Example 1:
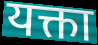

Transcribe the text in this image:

यक्ता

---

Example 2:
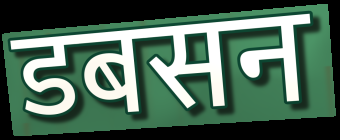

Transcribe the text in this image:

डबसन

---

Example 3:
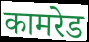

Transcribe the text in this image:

कामरेड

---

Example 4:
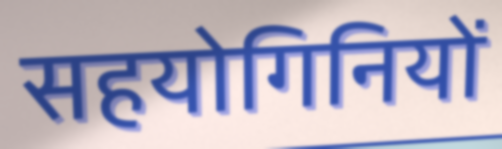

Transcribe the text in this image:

सहयोगिनियों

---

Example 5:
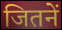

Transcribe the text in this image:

जितनें